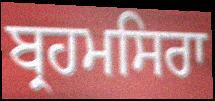
ਬ੍ਰਹਮਸਿਰਾ